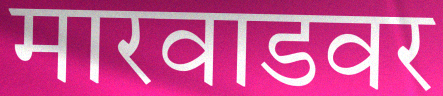
मारवाडवर